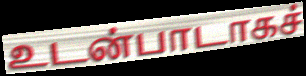
உடன்பாடாகச்